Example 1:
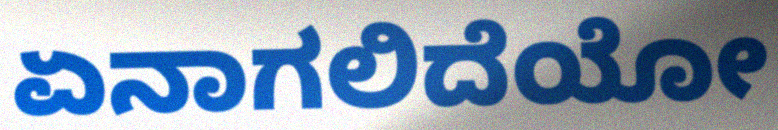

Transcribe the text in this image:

ಏನಾಗಲಿದೆಯೋ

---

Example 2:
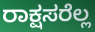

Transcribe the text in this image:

ರಾಕ್ಷಸರೆಲ್ಲ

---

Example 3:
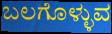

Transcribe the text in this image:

ಬಲಗೊಳ್ಳುವ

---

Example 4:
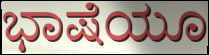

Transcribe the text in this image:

ಭಾಷೆಯೂ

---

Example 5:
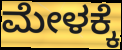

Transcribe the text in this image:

ಮೇಳಕ್ಕೆ